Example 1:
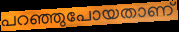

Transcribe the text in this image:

പറഞ്ഞുപോയതാണ്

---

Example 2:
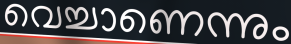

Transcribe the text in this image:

വെച്ചാണെന്നും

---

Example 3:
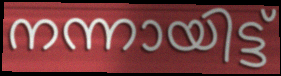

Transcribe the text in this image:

നന്നായിട്ട്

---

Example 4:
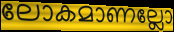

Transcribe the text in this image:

ലോകമാണല്ലോ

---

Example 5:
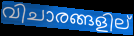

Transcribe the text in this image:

വിചാരങ്ങളില്